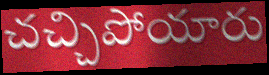
చచ్చిపోయారు